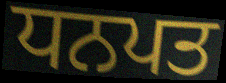
ਧਨਪਤ